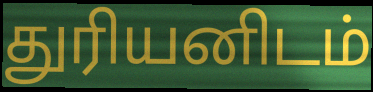
துரியனிடம்